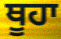
ਥੂਹਾ